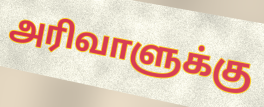
அரிவாளுக்கு